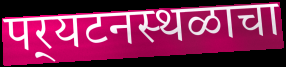
पर्यटनस्थळाचा